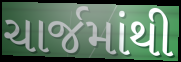
ચાર્જમાંથી